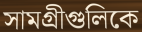
সামগ্রীগুলিকে